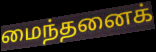
மைந்தனைக்